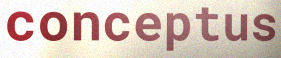
conceptus